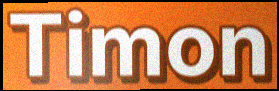
Timon